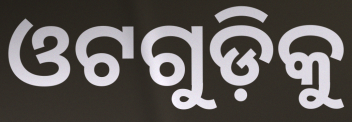
ଓଟଗୁଡ଼ିକୁ